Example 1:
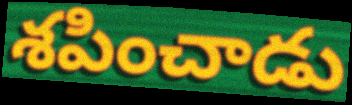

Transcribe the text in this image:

శపించాడు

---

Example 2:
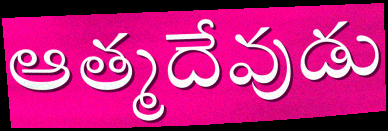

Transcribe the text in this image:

ఆత్మదేవుడు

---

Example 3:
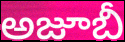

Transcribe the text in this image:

అజూబీ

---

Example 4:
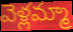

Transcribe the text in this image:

వెళ్లమ్మా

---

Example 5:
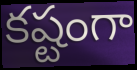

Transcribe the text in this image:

కష్టంగా